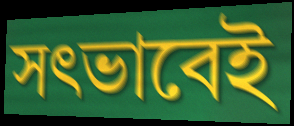
সৎভাবেই